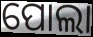
ପୋଲା